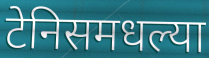
टेनिसमधल्या